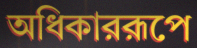
অধিকাররূপে